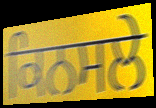
ਕਿਨਸਲੇ